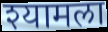
श्यामला